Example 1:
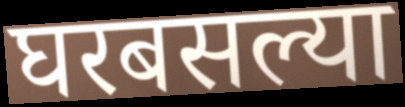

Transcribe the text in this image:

घरबसल्या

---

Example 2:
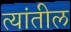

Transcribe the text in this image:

त्यांतील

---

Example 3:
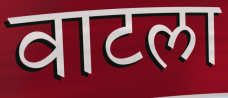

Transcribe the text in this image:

वाटला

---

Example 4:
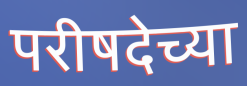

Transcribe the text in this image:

परीषदेच्या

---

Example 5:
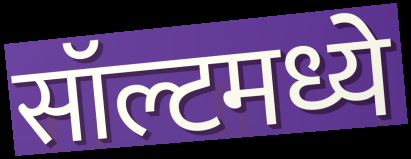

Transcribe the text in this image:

सॉल्टमध्ये